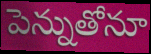
పెన్నుతోనూ